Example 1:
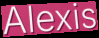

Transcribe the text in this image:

Alexis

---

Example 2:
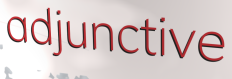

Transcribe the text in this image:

adjunctive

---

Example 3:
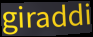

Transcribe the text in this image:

giraddi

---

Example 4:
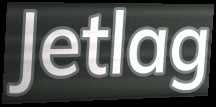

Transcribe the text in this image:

Jetlag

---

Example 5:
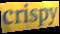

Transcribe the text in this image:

crispy